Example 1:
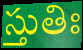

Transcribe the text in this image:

స్తుతిః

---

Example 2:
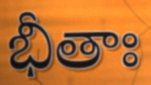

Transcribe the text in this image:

భీతాః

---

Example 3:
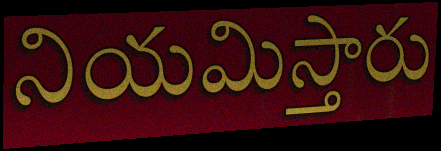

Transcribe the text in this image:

నియమిస్తారు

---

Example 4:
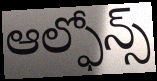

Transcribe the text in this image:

ఆల్ఫోన్స్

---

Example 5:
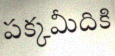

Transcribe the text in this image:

పక్కమీదికి